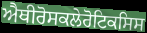
ਐਥੀਰੋਸਕਲੇਰੋਟਿਕਸਿਸ